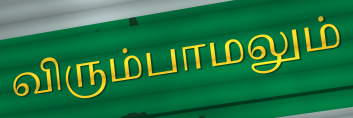
விரும்பாமலும்